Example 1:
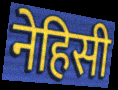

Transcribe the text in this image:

नेहिसी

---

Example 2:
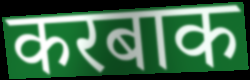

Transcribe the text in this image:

करबाक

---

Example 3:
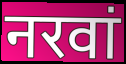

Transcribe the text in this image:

नरवां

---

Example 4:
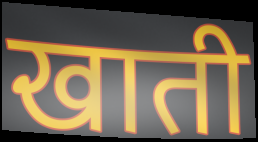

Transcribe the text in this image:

खाती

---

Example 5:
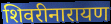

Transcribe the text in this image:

शिवरीनारायण